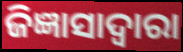
ଜିଜ୍ଞାସାଦ୍ୱାରା